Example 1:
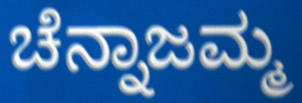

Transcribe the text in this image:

ಚೆನ್ನಾಜಮ್ಮ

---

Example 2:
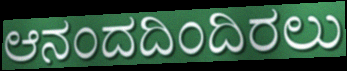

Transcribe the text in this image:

ಆನಂದದಿಂದಿರಲು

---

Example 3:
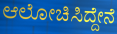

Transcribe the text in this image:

ಆಲೋಚಿಸಿದ್ದೇನೆ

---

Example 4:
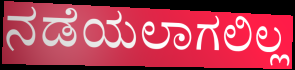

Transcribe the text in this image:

ನಡೆಯಲಾಗಲಿಲ್ಲ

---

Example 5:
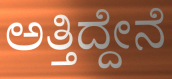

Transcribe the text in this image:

ಅತ್ತಿದ್ದೇನೆ